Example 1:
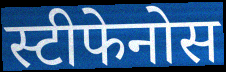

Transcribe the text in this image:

स्टीफेनोस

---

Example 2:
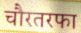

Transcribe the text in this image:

चौरतरफा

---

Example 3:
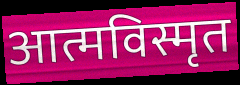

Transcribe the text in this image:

आत्मविस्मृत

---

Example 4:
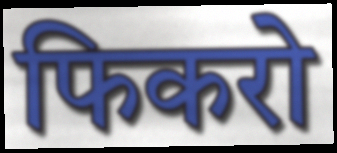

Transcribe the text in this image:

फिकरो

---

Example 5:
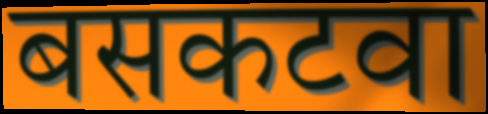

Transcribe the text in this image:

बसकटवा